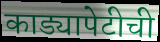
काड्यापेटीची